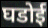
घडोई